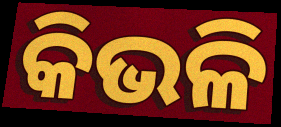
କିଭଳି